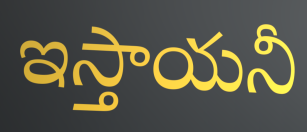
ఇస్తాయనీ